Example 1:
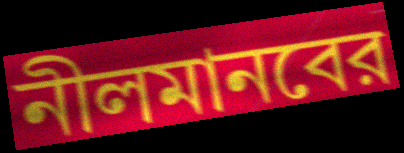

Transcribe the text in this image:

নীলমানবের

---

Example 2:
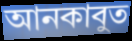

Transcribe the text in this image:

আনকাবুত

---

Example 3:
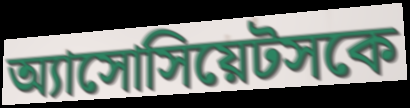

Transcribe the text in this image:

অ্যাসোসিয়েটসকে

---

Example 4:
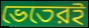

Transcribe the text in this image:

ভেতেরই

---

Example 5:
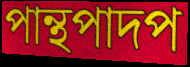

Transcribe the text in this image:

পান্থপাদপ